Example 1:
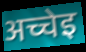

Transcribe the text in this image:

अच्चेइ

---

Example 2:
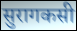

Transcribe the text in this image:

सुरागकसी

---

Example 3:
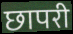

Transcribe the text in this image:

छापरी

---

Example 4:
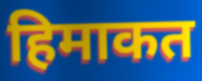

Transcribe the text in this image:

हिमाकत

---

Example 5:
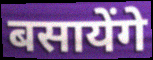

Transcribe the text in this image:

बसायेंगे